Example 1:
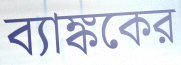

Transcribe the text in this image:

ব্যাঙ্ককের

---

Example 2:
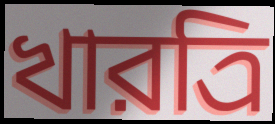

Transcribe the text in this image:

খারত্রি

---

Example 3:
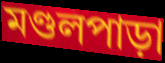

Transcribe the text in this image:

মণ্ডলপাড়া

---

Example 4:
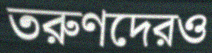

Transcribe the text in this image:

তরুণদেরও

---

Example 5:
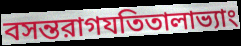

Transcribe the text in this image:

বসন্তরাগযতিতালাভ্যাং